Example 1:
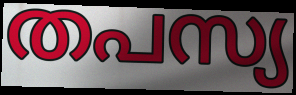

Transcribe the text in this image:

തപസ്യ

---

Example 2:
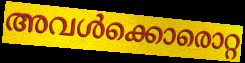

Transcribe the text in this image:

അവൾക്കൊരൊറ്റ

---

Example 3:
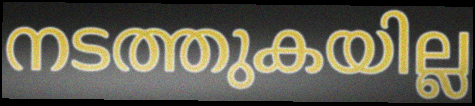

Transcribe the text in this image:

നടത്തുകയില്ല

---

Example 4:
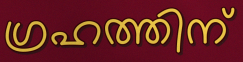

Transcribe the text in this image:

ഗ്രഹത്തിന്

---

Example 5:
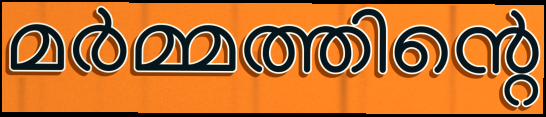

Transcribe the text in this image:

മർമ്മത്തിന്റെ